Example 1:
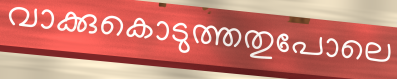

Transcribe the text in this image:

വാക്കുകൊടുത്തതുപോലെ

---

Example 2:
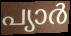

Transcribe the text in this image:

പ്യാർ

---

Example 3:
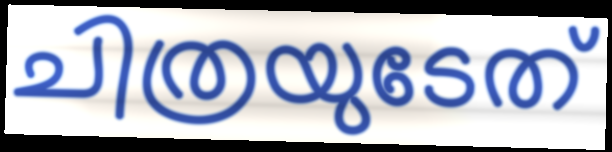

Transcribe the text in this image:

ചിത്രയുടേത്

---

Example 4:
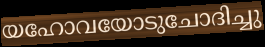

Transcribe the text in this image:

യഹോവയോടുചോദിച്ചു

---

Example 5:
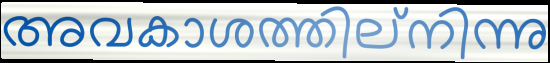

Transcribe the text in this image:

അവകാശത്തില്നിന്നു